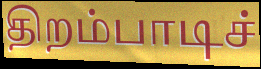
திறம்பாடிச்